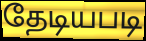
தேடியபடி